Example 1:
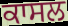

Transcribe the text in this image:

ਕਾਸਲ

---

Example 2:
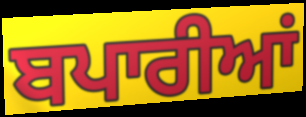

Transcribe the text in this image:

ਬਪਾਰੀਆਂ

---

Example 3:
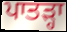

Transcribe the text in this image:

ਪਾਤੜ੍ਹਾ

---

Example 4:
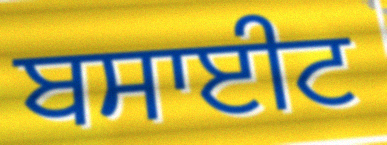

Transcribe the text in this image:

ਬਸਾਈਟ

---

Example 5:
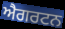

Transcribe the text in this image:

ਐਗਰਟਨ